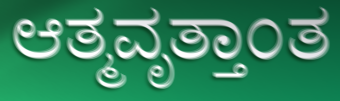
ಆತ್ಮವೃತ್ತಾಂತ